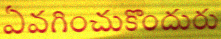
ఏవగించుకొందురు